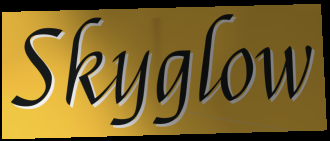
Skyglow